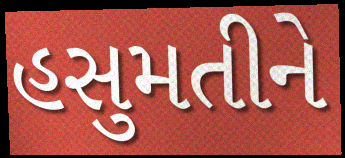
હસુમતીને